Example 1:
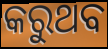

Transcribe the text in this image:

କରୁଥବ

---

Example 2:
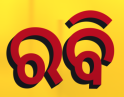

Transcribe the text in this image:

ରବି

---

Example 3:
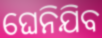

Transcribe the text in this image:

ଘେନିଯିବ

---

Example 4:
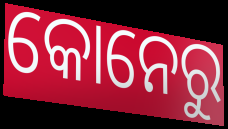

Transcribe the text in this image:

କୋନେରୁ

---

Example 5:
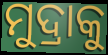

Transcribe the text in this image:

ମୁଦ୍ରାକୁ